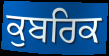
ਕੁਬਰਿਕ